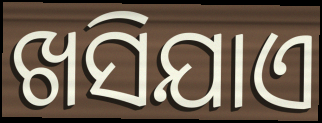
ଖସିଯାଏ